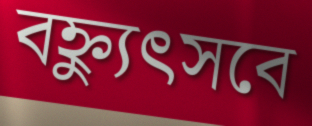
বহ্ন্যুৎসবে